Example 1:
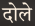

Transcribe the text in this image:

दोले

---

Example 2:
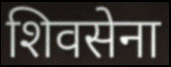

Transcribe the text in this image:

शिवसेना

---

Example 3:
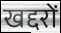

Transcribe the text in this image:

खद्दरों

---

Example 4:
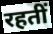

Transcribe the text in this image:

रहतीं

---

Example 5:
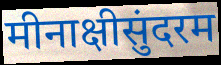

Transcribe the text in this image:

मीनाक्षीसुंदरम